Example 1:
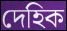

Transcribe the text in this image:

দেহিক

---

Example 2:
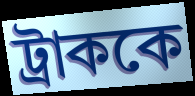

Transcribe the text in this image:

ট্রাককে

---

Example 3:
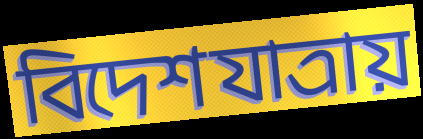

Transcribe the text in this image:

বিদেশযাত্রায়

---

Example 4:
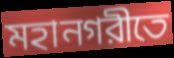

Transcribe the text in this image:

মহানগরীতে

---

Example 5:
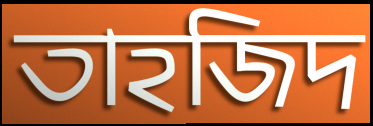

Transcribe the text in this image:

তাহজিদ